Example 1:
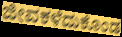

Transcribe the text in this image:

ಜೀವಕಳೆದುಕೊಂಡ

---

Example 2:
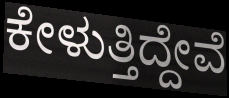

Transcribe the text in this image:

ಕೇಳುತ್ತಿದ್ದೇವೆ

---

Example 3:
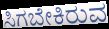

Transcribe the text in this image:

ಸಿಗಬೇಕಿರುವ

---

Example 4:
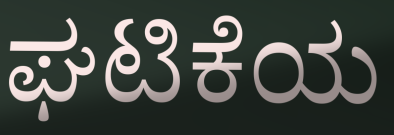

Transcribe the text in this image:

ಘಟಿಕೆಯ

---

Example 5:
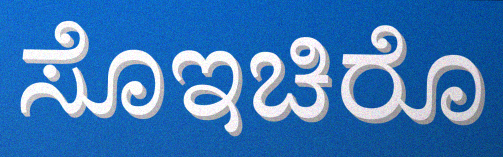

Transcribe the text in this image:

ಸೊಇಚಿರೊ